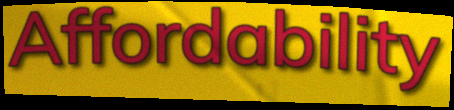
Affordability